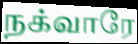
நக்வாரே